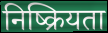
निष्क्रियता